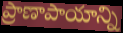
ప్రాణాపాయాన్ని